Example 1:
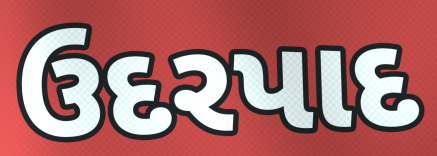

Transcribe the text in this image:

ઉદરપાદ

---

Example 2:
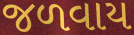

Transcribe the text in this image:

જળવાય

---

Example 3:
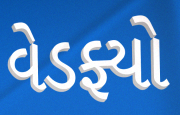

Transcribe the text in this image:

વેડફ્યો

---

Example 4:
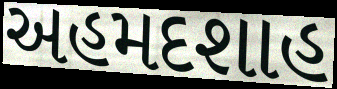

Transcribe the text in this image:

અહમદશાહ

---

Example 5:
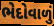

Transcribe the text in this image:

ભેદોવાળું